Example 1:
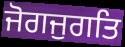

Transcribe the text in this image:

ਜੋਗਜੁਗਤਿ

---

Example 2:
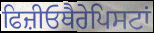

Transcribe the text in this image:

ਫਿਜ਼ੀਓਥੈਰੇਪਿਸਟਾਂ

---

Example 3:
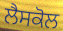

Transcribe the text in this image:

ਲੈਸਕੋਲ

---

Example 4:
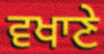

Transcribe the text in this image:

ਵਖਾਣੇ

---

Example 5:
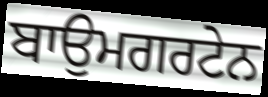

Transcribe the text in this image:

ਬਾਉਮਗਰਟੇਨ